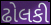
ઢોલકી